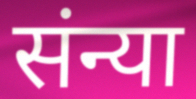
संन्या